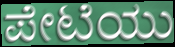
ಪೇಟೆಯು